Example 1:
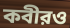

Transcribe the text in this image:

কবীরও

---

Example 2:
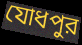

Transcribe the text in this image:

যোধপুর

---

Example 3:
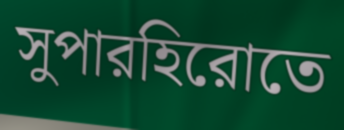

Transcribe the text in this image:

সুপারহিরোতে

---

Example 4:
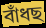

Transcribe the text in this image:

বাঁধছ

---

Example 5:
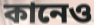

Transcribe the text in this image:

কানেও